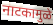
नाटकामुळे